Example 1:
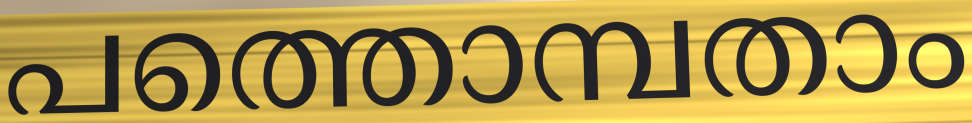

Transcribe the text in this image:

പത്തൊമ്പതാം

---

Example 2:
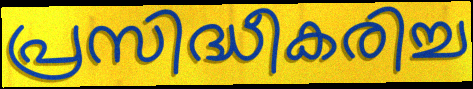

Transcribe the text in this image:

പ്രസിദ്ധീകരിച്ച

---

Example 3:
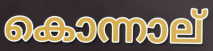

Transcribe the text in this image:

കൊന്നാല്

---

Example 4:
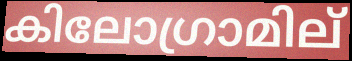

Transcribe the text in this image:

കിലോഗ്രാമില്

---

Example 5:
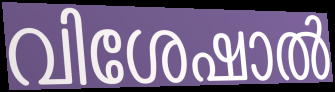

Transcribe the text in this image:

വിശേഷാൽ